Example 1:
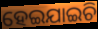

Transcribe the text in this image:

ହେଇଯାଇଚି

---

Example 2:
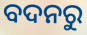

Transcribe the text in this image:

ବଦନରୁ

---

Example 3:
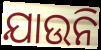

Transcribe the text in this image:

ଯାଉନି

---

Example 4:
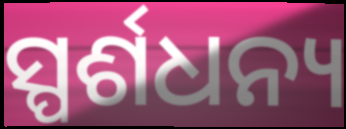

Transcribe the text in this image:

ସ୍ପର୍ଶଧନ୍ୟ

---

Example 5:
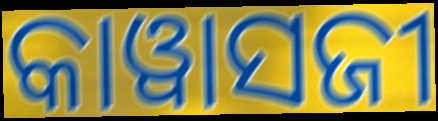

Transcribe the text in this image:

କାୱାସଜୀ